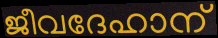
ജീവദേഹാന്